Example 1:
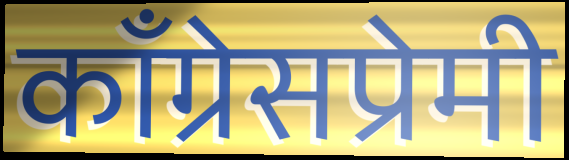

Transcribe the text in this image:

काँग्रेसप्रेमी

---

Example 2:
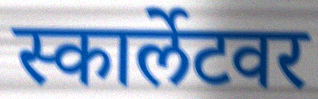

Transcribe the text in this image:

स्कार्लेटवर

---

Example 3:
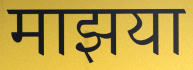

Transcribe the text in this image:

माझया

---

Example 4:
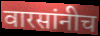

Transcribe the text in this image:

वारसांनीच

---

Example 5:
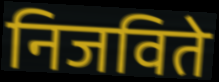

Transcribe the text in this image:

निजविते